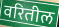
वरितील